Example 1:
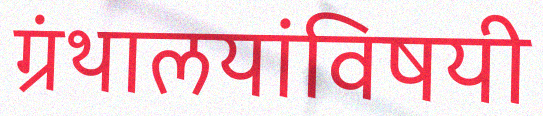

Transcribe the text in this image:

ग्रंथालयांविषयी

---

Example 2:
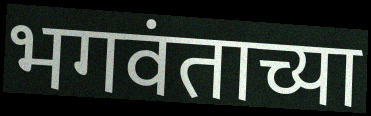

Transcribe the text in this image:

भगवंताच्या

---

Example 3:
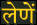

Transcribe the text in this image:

लेणें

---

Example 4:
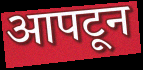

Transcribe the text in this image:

आपटून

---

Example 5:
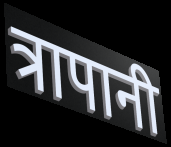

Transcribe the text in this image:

त्रापानी